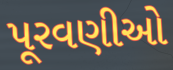
પૂરવણીઓ